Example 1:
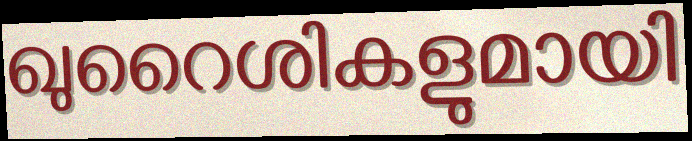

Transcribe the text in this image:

ഖുറൈശികളുമായി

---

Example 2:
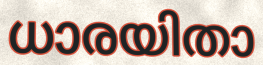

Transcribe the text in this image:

ധാരയിതാ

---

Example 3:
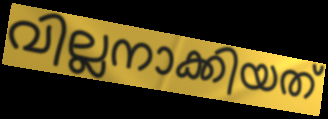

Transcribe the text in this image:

വില്ലനാക്കിയത്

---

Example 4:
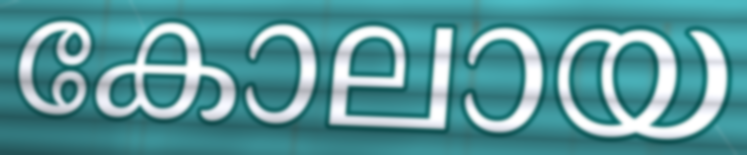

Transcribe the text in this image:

കോലായ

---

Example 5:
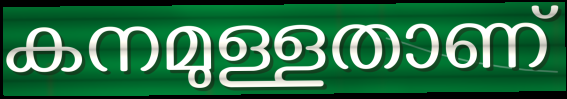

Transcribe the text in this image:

കനമുള്ളതാണ്